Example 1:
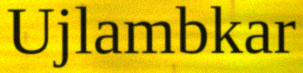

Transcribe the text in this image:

Ujlambkar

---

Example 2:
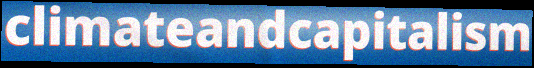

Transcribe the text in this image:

climateandcapitalism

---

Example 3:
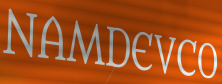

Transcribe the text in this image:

NAMDEVCO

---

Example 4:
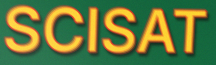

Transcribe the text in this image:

SCISAT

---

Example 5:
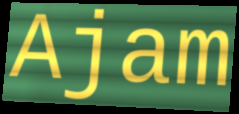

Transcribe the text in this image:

Ajam